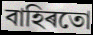
বাহিৰতো